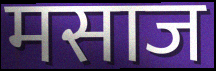
मसाज